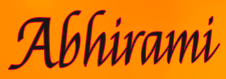
Abhirami